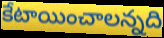
కేటాయించాలన్నది